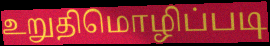
உறுதிமொழிப்படி